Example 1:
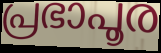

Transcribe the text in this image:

പ്രഭാപൂര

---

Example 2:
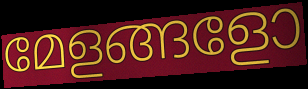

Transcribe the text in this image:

മേളങ്ങളോ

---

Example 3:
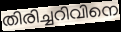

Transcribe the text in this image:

തിരിച്ചറിവിനെ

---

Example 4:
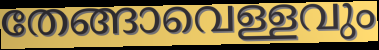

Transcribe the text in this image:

തേങ്ങാവെള്ളവും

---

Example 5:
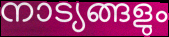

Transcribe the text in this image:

നാട്യങ്ങളും